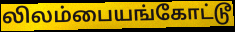
லிலம்பையங்கோட்டூ